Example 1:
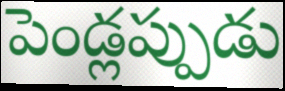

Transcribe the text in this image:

పెండ్లప్పుడు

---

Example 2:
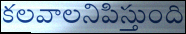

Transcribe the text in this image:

కలవాలనిపిస్తుంది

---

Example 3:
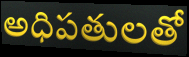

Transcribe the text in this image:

అధిపతులతో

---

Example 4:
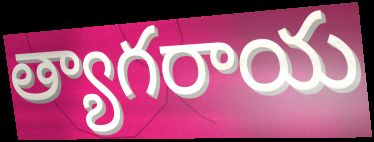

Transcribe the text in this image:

త్యాగరాయ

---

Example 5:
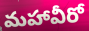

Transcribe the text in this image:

మహావీరో